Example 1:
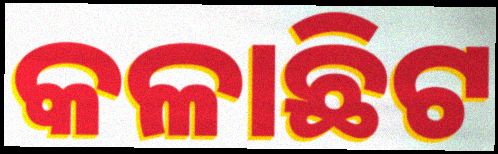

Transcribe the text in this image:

କଳାଛିଟ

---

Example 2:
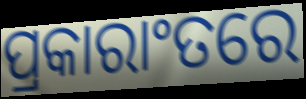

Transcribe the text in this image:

ପ୍ରକାରାଂତରେ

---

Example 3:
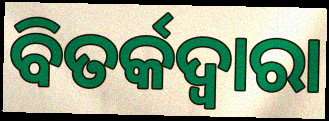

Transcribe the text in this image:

ବିତର୍କଦ୍ୱାରା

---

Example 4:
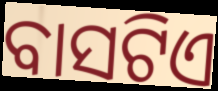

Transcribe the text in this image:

ବାସଟିଏ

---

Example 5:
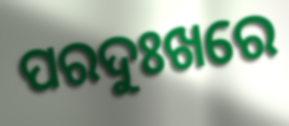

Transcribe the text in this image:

ପରଦୁଃଖରେ